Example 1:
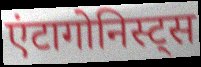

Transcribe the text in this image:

एंटागोनिस्ट्स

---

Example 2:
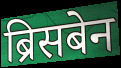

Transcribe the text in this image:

ब्रिसबेन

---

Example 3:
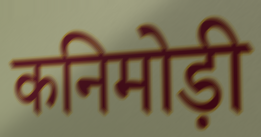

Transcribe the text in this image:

कनिमोड़ी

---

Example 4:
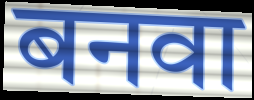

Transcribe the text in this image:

बनवा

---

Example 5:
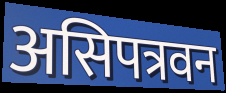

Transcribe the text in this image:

असिपत्रवन